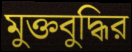
মুক্তবুদ্ধির